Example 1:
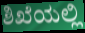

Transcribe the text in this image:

ಶಿಖೆಯಲ್ಲಿ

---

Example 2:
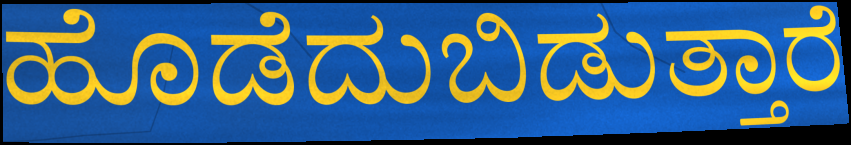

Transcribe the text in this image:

ಹೊಡೆದುಬಿಡುತ್ತಾರೆ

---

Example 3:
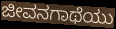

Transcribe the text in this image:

ಜೀವನಗಾಥೆಯು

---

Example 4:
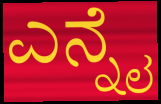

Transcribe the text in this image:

ಎನ್ನೈ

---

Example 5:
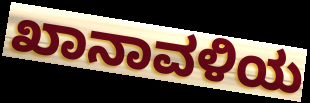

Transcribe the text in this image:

ಖಾನಾವಳಿಯ